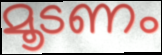
മൂടണം